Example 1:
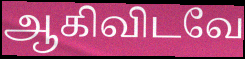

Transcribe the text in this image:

ஆகிவிடவே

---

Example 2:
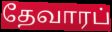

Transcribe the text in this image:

தேவாரப்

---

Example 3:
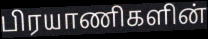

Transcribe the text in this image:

பிரயாணிகளின்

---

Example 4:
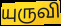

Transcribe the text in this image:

யுருவி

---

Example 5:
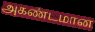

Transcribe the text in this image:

அகண்டமான